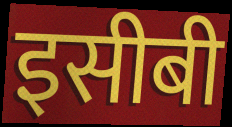
इसीबी